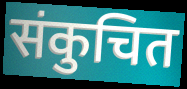
संकुचित